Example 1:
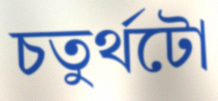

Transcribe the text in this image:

চতুৰ্থটো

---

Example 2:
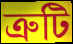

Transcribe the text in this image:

ত্ৰুটি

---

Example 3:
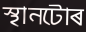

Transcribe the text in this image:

স্থানটোৰ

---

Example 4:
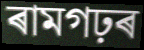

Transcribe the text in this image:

ৰামগঢ়ৰ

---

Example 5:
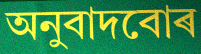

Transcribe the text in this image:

অনুবাদবোৰ